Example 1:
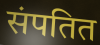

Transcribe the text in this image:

संपतित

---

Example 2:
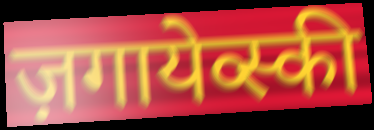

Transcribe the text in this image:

ज़गायेव्स्की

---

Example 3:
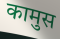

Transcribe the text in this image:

कामुस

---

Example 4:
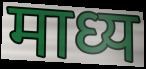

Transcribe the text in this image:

माध्‍य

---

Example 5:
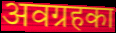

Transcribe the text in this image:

अवग्रहका